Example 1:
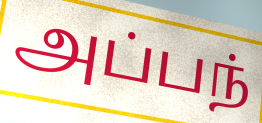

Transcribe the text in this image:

அப்பந்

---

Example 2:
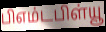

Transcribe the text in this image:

பிஎம்டபிள்யூ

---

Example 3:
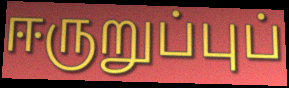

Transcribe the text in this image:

ஈருறுப்புப்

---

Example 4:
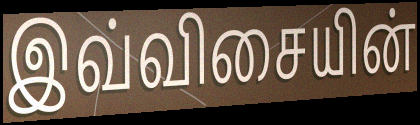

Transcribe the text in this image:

இவ்விசையின்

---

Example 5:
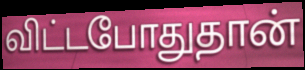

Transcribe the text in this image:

விட்டபோதுதான்